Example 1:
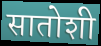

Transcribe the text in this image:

सातोशी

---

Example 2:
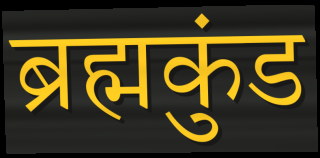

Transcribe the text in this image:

ब्रह्मकुंड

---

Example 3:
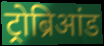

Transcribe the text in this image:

ट्रोब्रिआंड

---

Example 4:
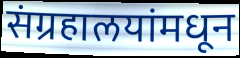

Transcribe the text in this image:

संग्रहालयांमधून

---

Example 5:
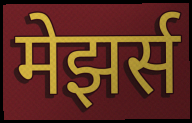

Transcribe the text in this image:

मेझर्स